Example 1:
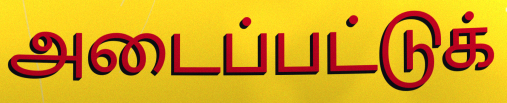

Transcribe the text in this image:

அடைப்பட்டுக்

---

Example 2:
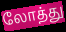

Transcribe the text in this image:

லோத்து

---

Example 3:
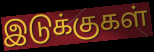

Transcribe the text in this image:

இடுக்குகள்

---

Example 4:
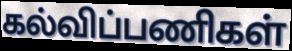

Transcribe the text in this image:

கல்விப்பணிகள்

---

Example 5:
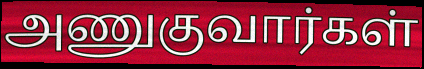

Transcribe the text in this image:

அணுகுவார்கள்